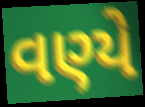
વણ્યે